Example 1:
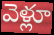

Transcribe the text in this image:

వెళ్లూ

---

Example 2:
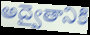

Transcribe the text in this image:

అద్వైతానికి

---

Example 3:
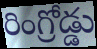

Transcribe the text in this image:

రింగ్రోడ్డు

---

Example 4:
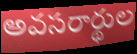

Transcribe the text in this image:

అవసరార్థుల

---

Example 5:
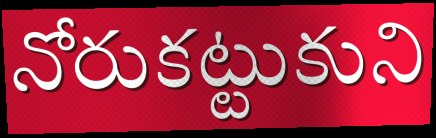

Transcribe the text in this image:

నోరుకట్టుకుని